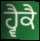
ਹ੍ਵੈਕੈ